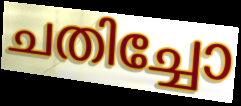
ചതിച്ചോ